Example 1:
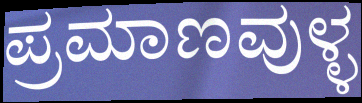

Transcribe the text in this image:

ಪ್ರಮಾಣವುಳ್ಳ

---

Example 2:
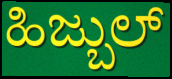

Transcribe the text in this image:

ಹಿಜ್ಬುಲ್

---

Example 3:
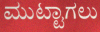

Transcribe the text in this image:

ಮುಟ್ಟಾಗಲು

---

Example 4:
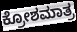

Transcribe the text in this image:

ಕ್ರೋಶಮಾತ್ರ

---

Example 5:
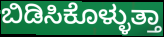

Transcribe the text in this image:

ಬಿಡಿಸಿಕೊಳ್ಳುತ್ತಾ